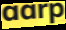
aarp